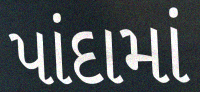
પાંદામાં